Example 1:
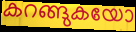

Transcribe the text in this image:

കറങ്ങുകയോ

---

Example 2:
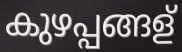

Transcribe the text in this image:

കുഴപ്പങ്ങള്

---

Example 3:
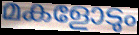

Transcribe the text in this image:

മകളോടും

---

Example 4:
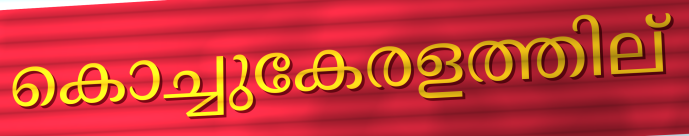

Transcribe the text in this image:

കൊച്ചുകേരളത്തില്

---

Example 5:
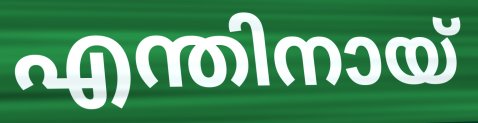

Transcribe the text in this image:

എന്തിനായ്